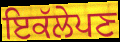
ਇਕੱਲੇਪਣ